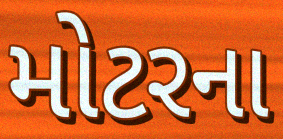
મોટરના